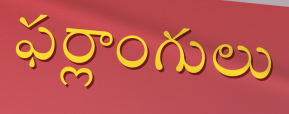
ఫర్లాంగులు